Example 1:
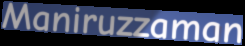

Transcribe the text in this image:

Maniruzzaman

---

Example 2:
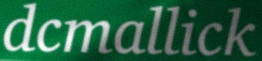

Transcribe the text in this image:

dcmallick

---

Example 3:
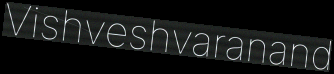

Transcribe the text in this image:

Vishveshvaranand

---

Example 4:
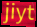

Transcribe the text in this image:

jiyt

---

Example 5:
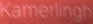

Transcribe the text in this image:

Kamerlingh